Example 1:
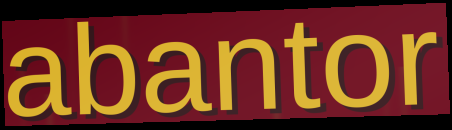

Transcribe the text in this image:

abantor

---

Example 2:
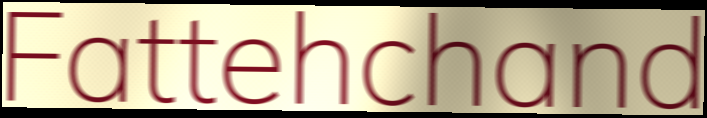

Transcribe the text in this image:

Fattehchand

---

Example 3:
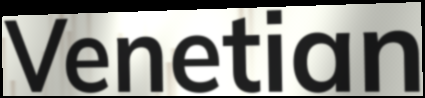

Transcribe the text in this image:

Venetian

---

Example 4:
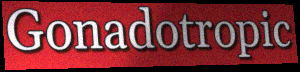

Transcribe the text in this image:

Gonadotropic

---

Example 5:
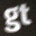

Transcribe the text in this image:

gt